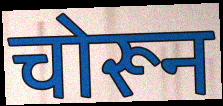
चोरून